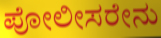
ಪೋಲೀಸರೇನು